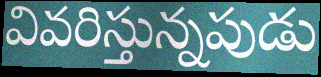
వివరిస్తున్నపుడు